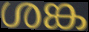
ശങ്ക